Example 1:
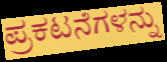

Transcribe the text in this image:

ಪ್ರಕಟನೆಗಳನ್ನು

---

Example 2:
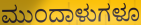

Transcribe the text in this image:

ಮುಂದಾಳುಗಳೂ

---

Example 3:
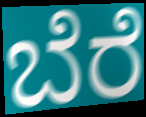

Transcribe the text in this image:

ಬೆರೆ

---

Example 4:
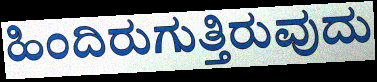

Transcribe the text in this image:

ಹಿಂದಿರುಗುತ್ತಿರುವುದು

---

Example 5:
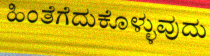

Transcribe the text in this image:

ಹಿಂತೆಗೆದುಕೊಳ್ಳುವುದು